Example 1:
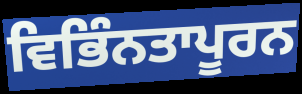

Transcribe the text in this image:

ਵਿਭਿੰਨਤਾਪੂਰਨ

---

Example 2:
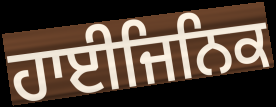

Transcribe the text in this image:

ਹਾਈਜਿਨਿਕ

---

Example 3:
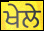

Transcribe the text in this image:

ਖੇਲੇ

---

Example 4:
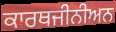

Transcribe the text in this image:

ਕਾਰਥਜੀਨੀਅਨ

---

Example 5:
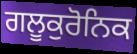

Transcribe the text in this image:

ਗਲੂਕੁਰੋਨਿਕ